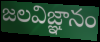
జలవిజ్ఞానం